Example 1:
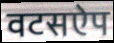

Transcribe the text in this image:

वटसऐप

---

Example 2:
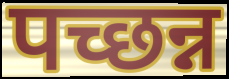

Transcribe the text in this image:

पच्छन्न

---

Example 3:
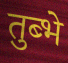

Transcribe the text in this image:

तुब्भे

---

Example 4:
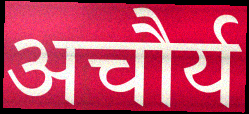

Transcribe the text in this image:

अचौर्य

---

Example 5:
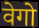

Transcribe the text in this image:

वेगो